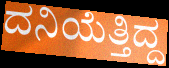
ದನಿಯೆತ್ತಿದ್ದ